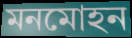
মনমোহন